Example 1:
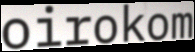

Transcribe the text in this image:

oirokom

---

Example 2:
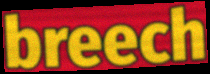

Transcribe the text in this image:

breech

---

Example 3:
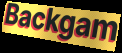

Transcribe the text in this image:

Backgam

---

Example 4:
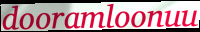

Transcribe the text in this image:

dooramloonuu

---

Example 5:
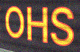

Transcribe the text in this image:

OHS